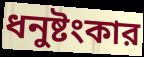
ধনুষ্টংকার